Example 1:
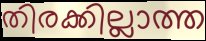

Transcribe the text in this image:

തിരക്കില്ലാത്ത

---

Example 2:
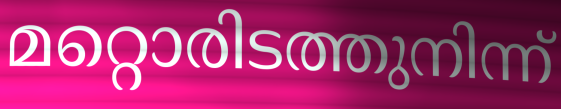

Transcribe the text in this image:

മറ്റൊരിടത്തുനിന്ന്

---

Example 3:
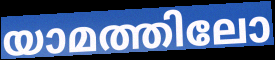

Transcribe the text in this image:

യാമത്തിലോ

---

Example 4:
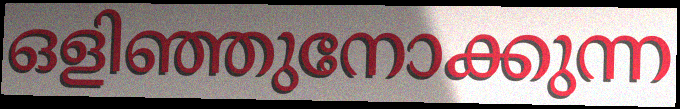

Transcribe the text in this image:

ഒളിഞ്ഞുനോക്കുന്ന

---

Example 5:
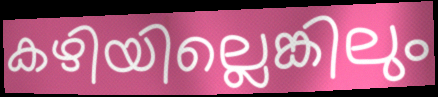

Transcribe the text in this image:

കഴിയില്ലെങ്കിലും